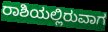
ರಾಶಿಯಲ್ಲಿರುವಾಗ